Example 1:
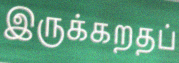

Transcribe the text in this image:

இருக்கறதப்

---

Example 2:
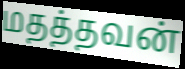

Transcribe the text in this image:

மதத்தவன்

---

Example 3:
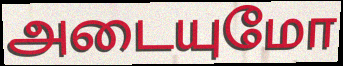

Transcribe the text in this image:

அடையுமோ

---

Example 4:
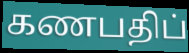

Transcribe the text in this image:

கணபதிப்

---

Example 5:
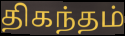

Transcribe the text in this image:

திகந்தம்